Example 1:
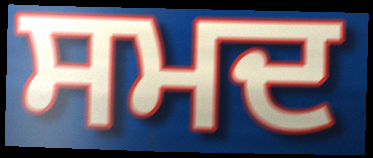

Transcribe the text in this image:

ਸਮਦ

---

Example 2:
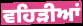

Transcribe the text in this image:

ਵਹਿੜੀਆਂ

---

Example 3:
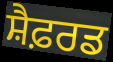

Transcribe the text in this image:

ਸ਼ੈਫ਼ਰਡ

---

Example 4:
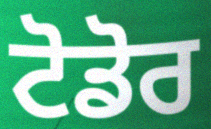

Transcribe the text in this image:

ਟੋਡੋਰ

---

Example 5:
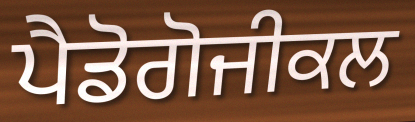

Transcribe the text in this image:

ਪੈਡੋਗੋਜੀਕਲ